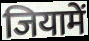
जियामें